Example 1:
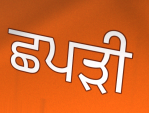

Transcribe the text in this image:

ਛਪੜੀ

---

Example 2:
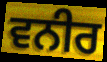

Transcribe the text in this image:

ਵਨੀਰ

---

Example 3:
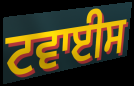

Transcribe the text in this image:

ਟਵਾਈਸ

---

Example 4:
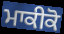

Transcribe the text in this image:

ਮਾਕੀਕੋ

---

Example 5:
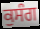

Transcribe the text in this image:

ਕੁਸੰਗ